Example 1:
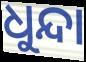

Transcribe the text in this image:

ଧୁନ୍ଦା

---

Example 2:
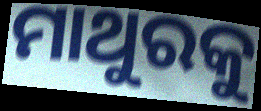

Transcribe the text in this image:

ମାଥୁରକୁ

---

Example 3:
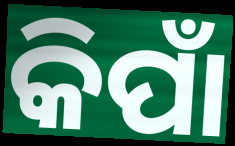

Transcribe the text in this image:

କିପାଁ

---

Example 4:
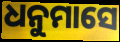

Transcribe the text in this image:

ଧନୁମାସେ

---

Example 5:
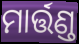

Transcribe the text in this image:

ମାର୍ତ୍ତଣ୍ଡ